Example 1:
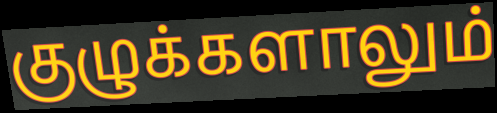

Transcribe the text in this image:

குழுக்களாலும்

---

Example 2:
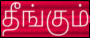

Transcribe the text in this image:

தீங்கும்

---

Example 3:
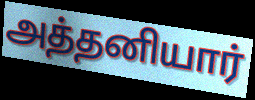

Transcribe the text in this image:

அத்தனியார்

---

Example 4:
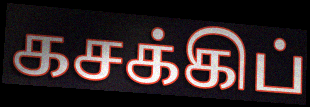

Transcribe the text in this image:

கசக்கிப்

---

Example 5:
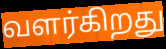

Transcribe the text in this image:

வளர்கிறது